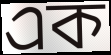
এক